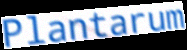
Plantarum